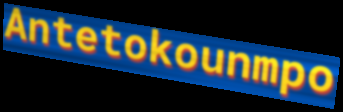
Antetokounmpo